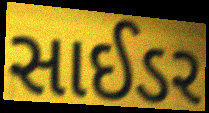
સાઈડર